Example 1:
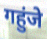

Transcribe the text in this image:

गहुंजे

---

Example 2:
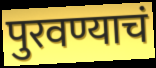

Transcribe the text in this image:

पुरवण्याचं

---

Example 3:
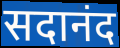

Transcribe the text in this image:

सदानंद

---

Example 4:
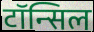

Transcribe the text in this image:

टॉन्सिल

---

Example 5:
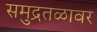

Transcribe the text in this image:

समुद्रतळावर